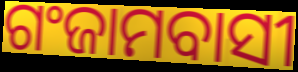
ଗଂଜାମବାସୀ